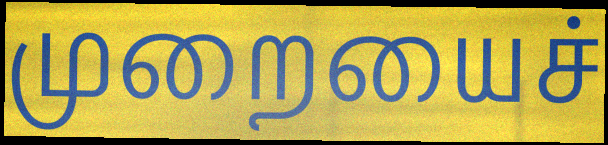
முறையைச்